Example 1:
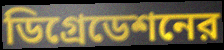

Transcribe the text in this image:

ডিগ্রেডেশনের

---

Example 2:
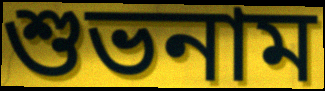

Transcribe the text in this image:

শুভনাম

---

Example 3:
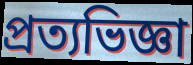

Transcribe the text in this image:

প্রত্যভিজ্ঞা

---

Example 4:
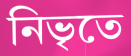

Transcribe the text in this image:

নিভৃতে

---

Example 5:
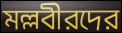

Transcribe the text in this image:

মল্লবীরদের